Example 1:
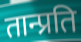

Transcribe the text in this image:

तान्प्रति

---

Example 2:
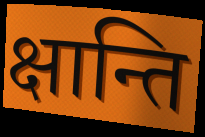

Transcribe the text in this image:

क्षान्ति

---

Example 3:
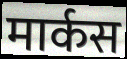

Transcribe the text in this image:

मार्कस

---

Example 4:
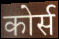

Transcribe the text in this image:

कोर्स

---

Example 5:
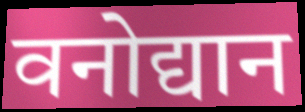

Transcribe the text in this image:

वनोद्यान